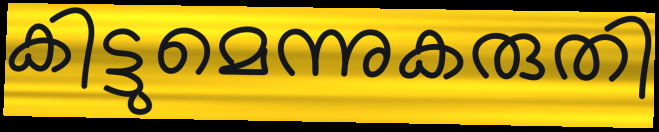
കിട്ടുമെന്നുകരുതി